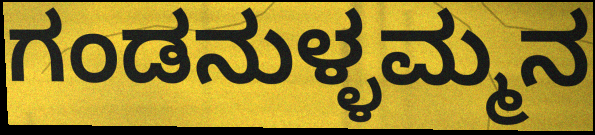
ಗಂಡನುಳ್ಳಮ್ಮನ